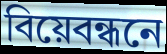
বিয়েবন্ধনে